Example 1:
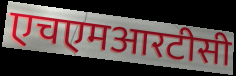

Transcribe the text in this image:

एचएमआरटीसी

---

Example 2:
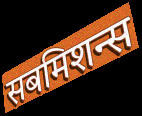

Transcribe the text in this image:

सबमिशन्स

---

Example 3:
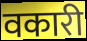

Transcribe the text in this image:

वकारी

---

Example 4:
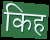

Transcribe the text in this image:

किह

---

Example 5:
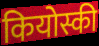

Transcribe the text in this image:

कियोस्की